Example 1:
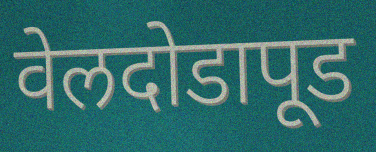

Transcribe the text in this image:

वेलदोडापूड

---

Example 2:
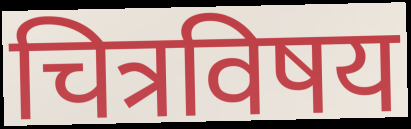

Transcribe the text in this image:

चित्रविषय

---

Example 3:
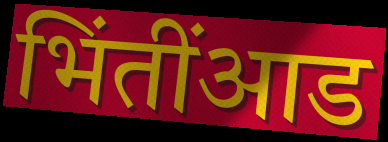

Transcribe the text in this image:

भिंतींआड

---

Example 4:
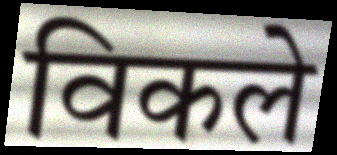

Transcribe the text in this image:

विकले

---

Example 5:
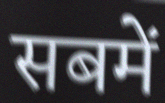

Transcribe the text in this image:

सबमें